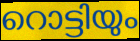
റൊട്ടിയും